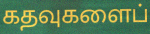
கதவுகளைப்